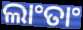
ଲାଂତାଂ